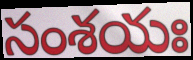
సంశయః